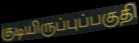
குடியிருப்புப்பகுதி